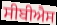
ਸੀਬੀਐਸ